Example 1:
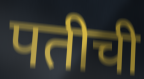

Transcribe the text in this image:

पतीची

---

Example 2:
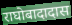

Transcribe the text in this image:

राघोबादादास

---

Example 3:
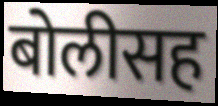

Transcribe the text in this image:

बोलीसह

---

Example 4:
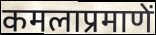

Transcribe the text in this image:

कमलाप्रमाणें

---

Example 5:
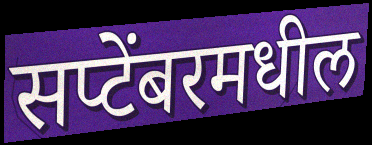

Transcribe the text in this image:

सप्टेंबरमधील